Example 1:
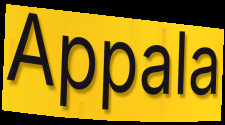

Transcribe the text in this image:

Appala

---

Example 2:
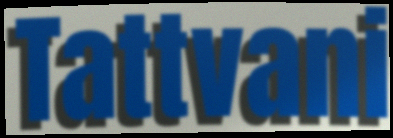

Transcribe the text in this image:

Tattvani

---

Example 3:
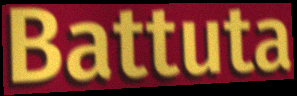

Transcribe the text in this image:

Battuta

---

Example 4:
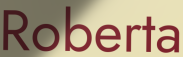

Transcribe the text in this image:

Roberta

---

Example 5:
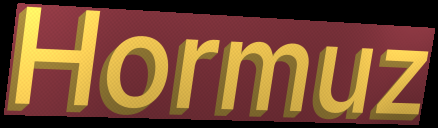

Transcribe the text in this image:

Hormuz